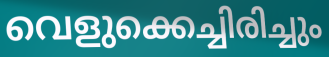
വെളുക്കെച്ചിരിച്ചും